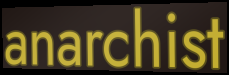
anarchist